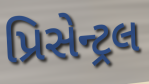
પ્રિસેન્ટ્રલ